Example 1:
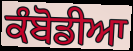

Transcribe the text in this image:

ਕੰਬੋਡੀਆ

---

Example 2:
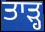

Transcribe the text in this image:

ਤਾੜ੍ਹ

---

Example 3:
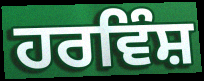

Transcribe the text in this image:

ਹਰਵਿੰਸ਼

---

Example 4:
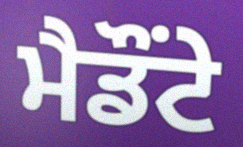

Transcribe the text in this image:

ਮੈਡੌਂਟੇ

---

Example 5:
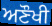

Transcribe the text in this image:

ਅਣੌਖੀ